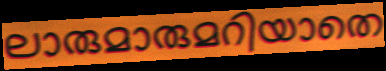
ലാരുമാരുമറിയാതെ